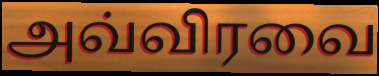
அவ்விரவை